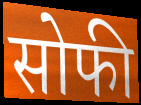
सोफी